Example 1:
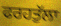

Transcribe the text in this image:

ਫਰਹਤੁੱਲਾ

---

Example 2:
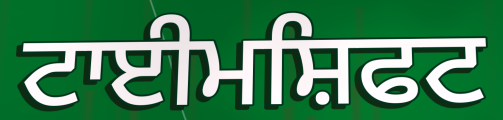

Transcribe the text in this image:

ਟਾਈਮਸ਼ਿਫਟ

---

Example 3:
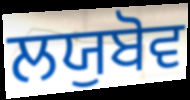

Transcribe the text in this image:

ਲਯੁਬੋਵ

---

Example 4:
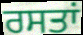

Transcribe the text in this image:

ਰਸਤਾਂ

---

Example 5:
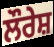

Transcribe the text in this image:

ਲੌਰੇਸ਼